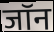
जॉन